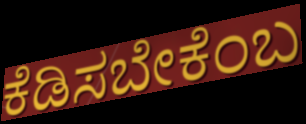
ಕೆಡಿಸಬೇಕೆಂಬ